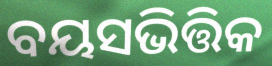
ବୟସଭିତ୍ତିକ